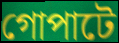
গোপাটে